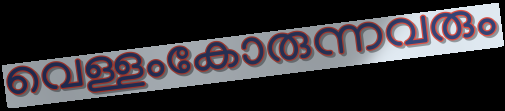
വെള്ളംകോരുന്നവരും